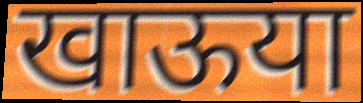
खाऊया